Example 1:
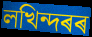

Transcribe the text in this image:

লখিন্দৰৰ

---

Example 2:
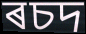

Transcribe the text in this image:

ৰচদ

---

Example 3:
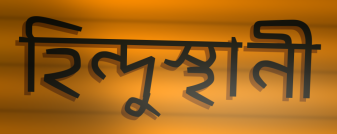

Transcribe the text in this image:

হিন্দুস্থানী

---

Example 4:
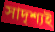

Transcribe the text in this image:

সাদৃশ্যই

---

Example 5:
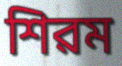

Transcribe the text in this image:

শিৱম